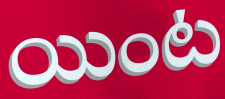
యింట